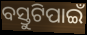
ବସ୍ତୁଟିପାଇଁ